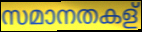
സമാനതകള്